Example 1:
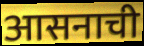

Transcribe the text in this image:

आसनाची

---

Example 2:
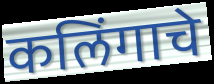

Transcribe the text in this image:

कलिंगाचे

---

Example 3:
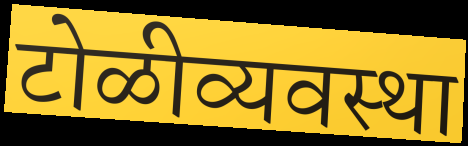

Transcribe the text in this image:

टोळीव्यवस्था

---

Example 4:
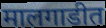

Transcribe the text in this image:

मालगाडीत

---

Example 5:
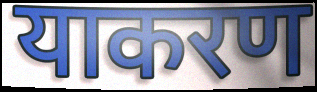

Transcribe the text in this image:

याकरण